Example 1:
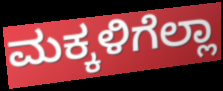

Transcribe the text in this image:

ಮಕ್ಕಳಿಗೆಲ್ಲಾ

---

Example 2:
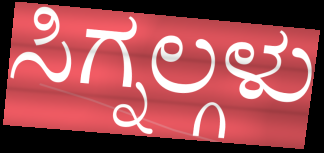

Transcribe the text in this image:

ಸಿಗ್ನಲ್ಗಳು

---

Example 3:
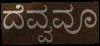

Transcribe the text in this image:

ದೆವ್ವವೂ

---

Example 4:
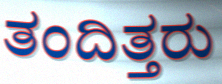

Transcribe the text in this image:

ತಂದಿತ್ತರು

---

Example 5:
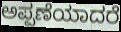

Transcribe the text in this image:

ಅಪ್ಪಣೆಯಾದರೆ